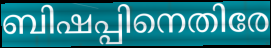
ബിഷപ്പിനെതിരേ